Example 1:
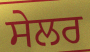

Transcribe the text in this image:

ਸੇਲਰ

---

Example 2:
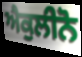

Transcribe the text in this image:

ਐਕੁਲੀਨੋ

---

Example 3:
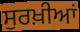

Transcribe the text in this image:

ਸੁਰਖ਼ੀਆਂ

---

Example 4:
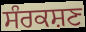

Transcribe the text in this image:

ਸੰਰਕਸ਼ਣ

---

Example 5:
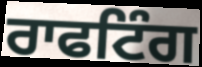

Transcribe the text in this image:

ਰਾਫਟਿੰਗ